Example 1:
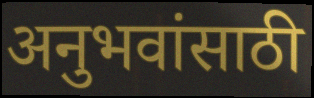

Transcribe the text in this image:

अनुभवांसाठी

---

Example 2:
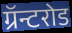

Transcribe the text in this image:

ग्रॅन्टरोड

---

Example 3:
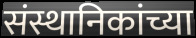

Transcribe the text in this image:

संस्थानिकांच्या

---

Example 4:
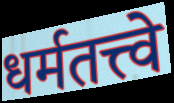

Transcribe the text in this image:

धर्मतत्त्वे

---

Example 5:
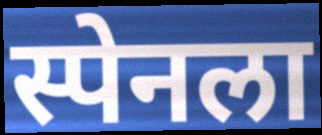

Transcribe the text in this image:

स्पेनला